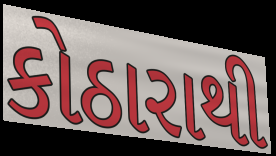
કોઠારાથી